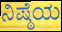
ನಿಷ್ಠೆಯ